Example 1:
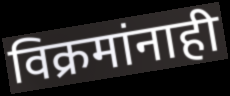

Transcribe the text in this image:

विक्रमांनाही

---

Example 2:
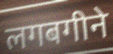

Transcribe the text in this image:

लगबगीने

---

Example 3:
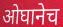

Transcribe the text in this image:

ओघानेच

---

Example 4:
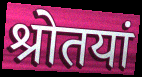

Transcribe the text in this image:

श्रोतयां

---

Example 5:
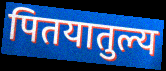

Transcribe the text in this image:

पितयातुल्य